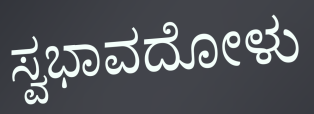
ಸ್ವಭಾವದೋಳು